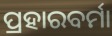
ପ୍ରହାରବର୍ମା